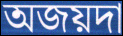
অজয়দা